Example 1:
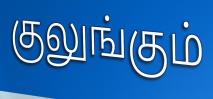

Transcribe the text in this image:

குலுங்கும்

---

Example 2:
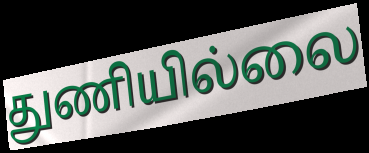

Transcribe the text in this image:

துணியில்லை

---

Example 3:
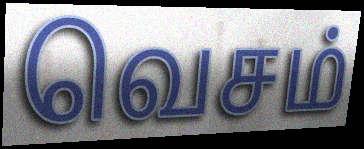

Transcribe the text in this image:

வெசம்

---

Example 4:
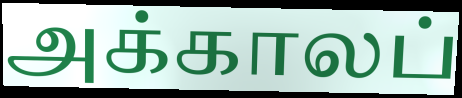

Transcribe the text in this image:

அக்காலப்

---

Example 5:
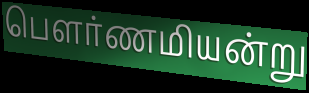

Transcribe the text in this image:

பெளர்ணமியன்று